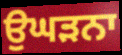
ਉਘੜਨਾ